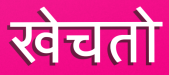
खेचतो